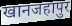
खानजहापुर